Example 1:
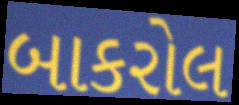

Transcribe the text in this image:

બાકરોલ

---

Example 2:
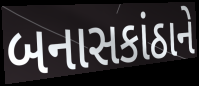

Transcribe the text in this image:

બનાસકાંઠાને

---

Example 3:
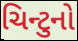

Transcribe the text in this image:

ચિન્ટુનો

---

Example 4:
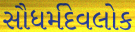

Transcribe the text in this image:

સૌધર્મદેવલોક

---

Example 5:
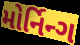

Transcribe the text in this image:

મોર્નિન્ગ